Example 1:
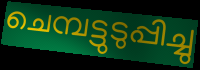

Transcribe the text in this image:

ചെമ്പട്ടുടുപ്പിച്ചു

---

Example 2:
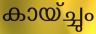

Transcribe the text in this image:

കായ്ച്ചും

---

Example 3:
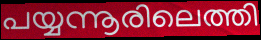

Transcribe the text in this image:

പയ്യന്നൂരിലെത്തി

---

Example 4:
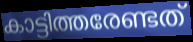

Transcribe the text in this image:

കാട്ടിത്തരേണ്ടത്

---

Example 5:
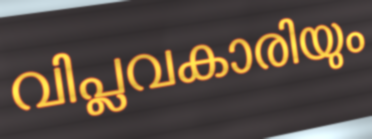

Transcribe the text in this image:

വിപ്ലവകാരിയും